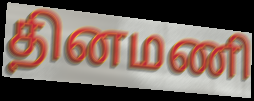
தினமணி